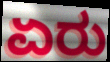
ಏರು